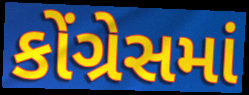
કોંગ્રેસમાં